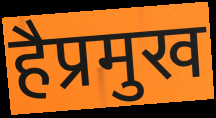
हैप्रमुख